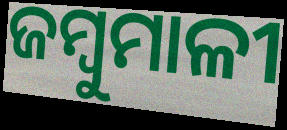
ଜମ୍ବୁମାଳୀ